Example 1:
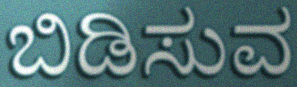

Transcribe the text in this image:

ಬಿಡಿಸುವ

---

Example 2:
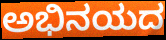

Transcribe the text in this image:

ಅಭಿನಯದ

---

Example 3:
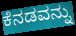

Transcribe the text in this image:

ಕೆನಡವನ್ನು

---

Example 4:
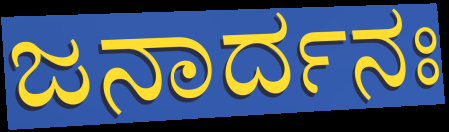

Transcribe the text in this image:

ಜನಾರ್ದನಃ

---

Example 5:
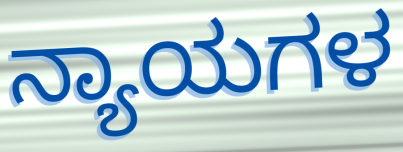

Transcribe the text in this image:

ನ್ಯಾಯಗಳ